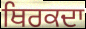
ਥਿਰਕਦਾ